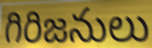
గిరిజనులు